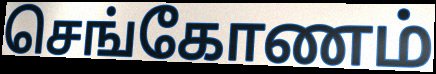
செங்கோணம்